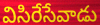
విసిరేసేవాడు